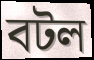
বটল